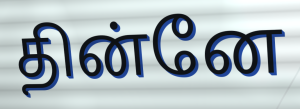
தின்னே